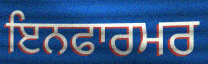
ਇਨਫਾਰਮਰ